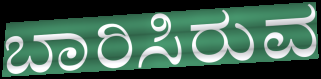
ಬಾರಿಸಿರುವ